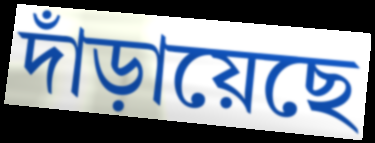
দাঁড়ায়েছে